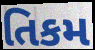
તિકમ